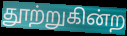
தூற்றுகின்ற